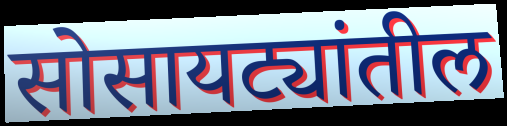
सोसायट्यांतील